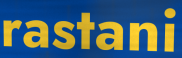
rastani